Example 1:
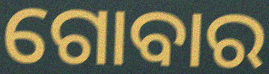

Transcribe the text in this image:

ଗୋବାର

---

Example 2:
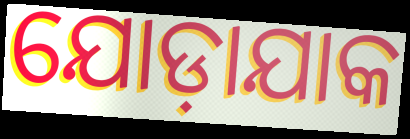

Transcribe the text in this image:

ଯୋଡ଼ାଯାକ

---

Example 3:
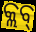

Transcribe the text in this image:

କ୍ଲବ୍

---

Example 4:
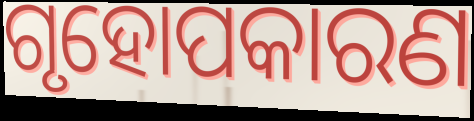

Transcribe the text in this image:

ଗୃହୋପକାରଣ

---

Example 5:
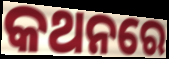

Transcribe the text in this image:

କଥନରେ